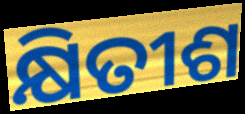
କ୍ଷିତୀଶ